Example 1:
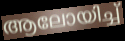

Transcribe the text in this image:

ആലോയിച്ച്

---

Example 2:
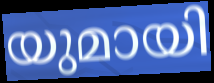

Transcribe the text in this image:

യുമായി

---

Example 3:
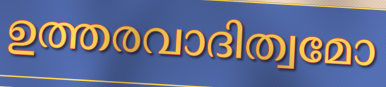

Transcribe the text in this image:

ഉത്തരവാദിത്വമോ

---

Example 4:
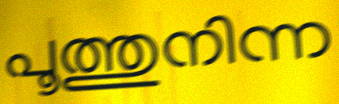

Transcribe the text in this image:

പൂത്തുനിന്ന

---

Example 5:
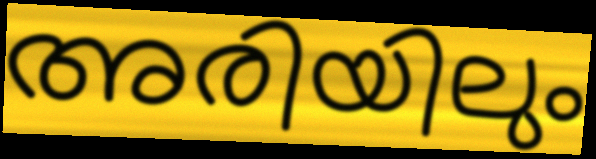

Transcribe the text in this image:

അരിയിലും